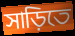
সাড়িতে